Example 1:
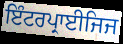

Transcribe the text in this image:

ਇੰਟਰਪ੍ਰਾਈਜਿਜ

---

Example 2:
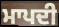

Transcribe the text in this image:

ਮਾਪਦੀ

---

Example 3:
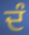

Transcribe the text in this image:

ਦੰ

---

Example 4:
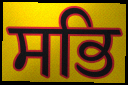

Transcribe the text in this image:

ਸਭਿ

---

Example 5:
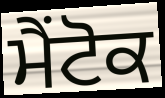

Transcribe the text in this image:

ਮੈਂਟੋਕ